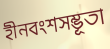
হীনবংশসম্ভূতা